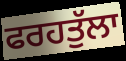
ਫਰਹਤੁੱਲਾ